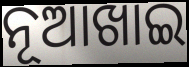
ନୂଆଖାଇ